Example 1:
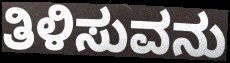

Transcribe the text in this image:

ತಿಳಿಸುವನು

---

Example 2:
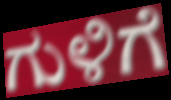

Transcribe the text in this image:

ಗುಳಿಗೆ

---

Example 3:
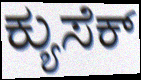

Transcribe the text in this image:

ಕ್ಯುಸೆಕ್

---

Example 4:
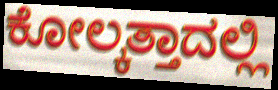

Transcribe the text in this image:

ಕೋಲ್ಕತ್ತಾದಲ್ಲಿ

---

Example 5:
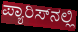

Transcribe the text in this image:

ಪ್ಯಾರಿಸ್‌ನಲ್ಲಿ